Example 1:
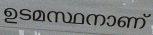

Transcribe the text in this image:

ഉടമസ്ഥനാണ്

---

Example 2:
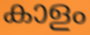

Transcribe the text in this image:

കാളം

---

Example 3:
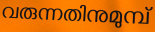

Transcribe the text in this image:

വരുന്നതിനുമുമ്പ്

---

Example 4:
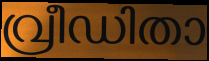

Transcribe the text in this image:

വ്രീഡിതാ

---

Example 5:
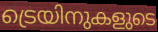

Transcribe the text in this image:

ട്രെയിനുകളുടെ